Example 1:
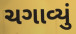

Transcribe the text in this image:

ચગાવ્યું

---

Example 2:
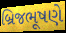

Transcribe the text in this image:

બ્રિજભૂષણે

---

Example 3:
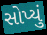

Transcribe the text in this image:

સોપ્યું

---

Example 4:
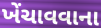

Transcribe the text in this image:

ખેંચાવવાના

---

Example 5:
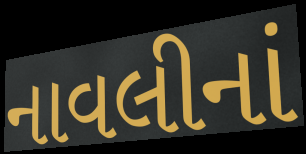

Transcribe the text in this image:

નાવલીનાં